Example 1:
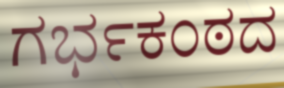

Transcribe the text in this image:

ಗರ್ಭಕಂಠದ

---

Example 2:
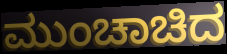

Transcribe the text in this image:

ಮುಂಚಾಚಿದ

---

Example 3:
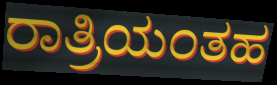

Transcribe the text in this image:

ರಾತ್ರಿಯಂತಹ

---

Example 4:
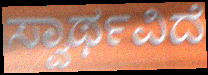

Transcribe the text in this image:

ಸ್ವಾರ್ಥವಿದೆ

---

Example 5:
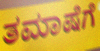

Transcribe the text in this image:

ತಮಾಷೆಗೆ